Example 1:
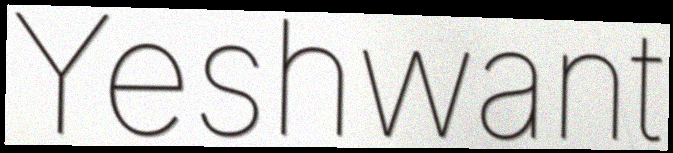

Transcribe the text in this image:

Yeshwant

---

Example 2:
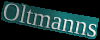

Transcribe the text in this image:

Oltmanns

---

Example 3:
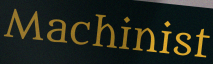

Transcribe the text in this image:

Machinist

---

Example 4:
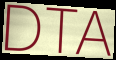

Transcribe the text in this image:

DTA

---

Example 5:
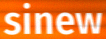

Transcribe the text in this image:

sinew